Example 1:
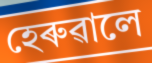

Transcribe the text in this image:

হেৰুৱালে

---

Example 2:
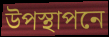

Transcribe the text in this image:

উপস্থাপনে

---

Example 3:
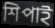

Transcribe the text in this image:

শিপাই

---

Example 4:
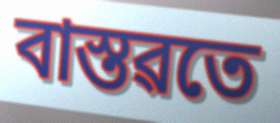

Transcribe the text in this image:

বাস্তৱতে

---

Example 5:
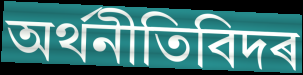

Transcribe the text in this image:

অৰ্থনীতিবিদৰ